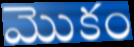
మొకం